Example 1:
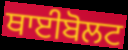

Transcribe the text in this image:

ਥਾਈਬੋਲਟ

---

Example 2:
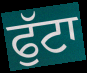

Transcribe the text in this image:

ਫੁੱਟਾ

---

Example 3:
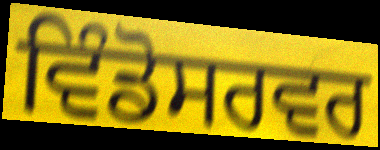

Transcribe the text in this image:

ਵਿੰਡੋਸਰਵਰ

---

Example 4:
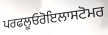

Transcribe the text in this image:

ਪਰਫਲੂਓਰੋਇਲਾਸਟੋਮਰ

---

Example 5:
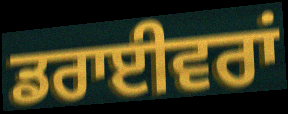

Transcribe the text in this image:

ਡਰਾਈਵਰਾਂ